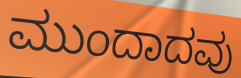
ಮುಂದಾದವು